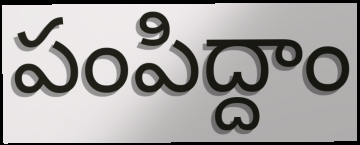
పంపిద్దాం